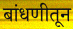
बांधणीतून